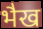
भैख